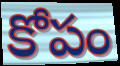
కోపం